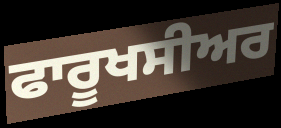
ਫਾਰੂਖਸੀਅਰ